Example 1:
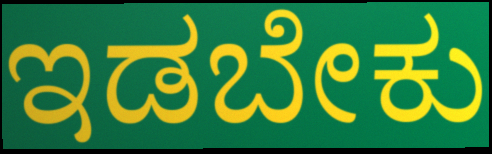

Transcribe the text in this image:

ಇಡಬೇಕು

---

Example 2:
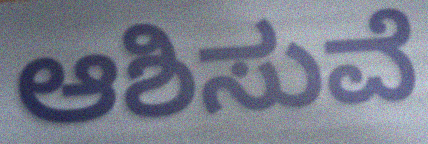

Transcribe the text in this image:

ಆಶಿಸುವೆ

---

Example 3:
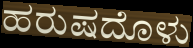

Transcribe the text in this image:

ಹರುಷದೊಳು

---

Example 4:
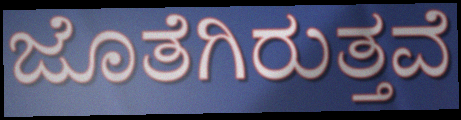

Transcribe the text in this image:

ಜೊತೆಗಿರುತ್ತವೆ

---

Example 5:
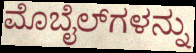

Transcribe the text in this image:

ಮೊಬೈಲ್‌ಗಳನ್ನು